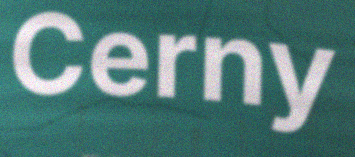
Cerny